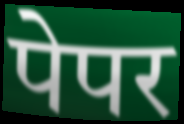
पेपर